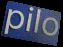
pilo